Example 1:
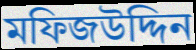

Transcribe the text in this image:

মফিজউদ্দিন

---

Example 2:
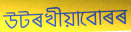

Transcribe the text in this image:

উটৰখীয়াবোৰৰ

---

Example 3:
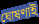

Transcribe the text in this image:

ঘোষণাই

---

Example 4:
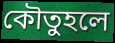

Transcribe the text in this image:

কৌতুহলে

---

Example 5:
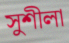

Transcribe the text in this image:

সুশীলা